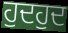
ਹੁਦਹੁਦ